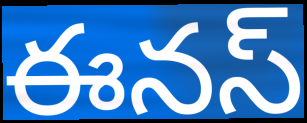
ఈనస్